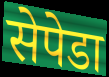
सेपेडा